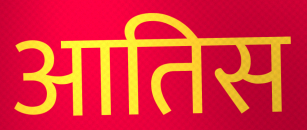
आतिस